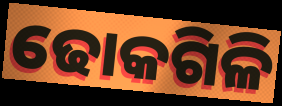
ଢୋକଗିଳି